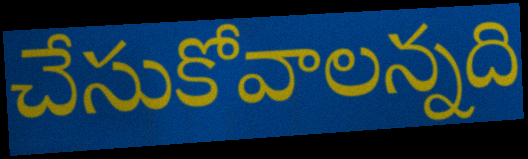
చేసుకోవాలన్నది